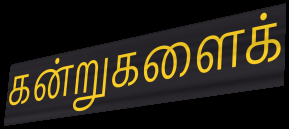
கன்றுகளைக்